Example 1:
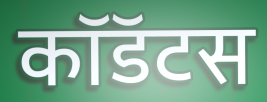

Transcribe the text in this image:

कॉडॅटस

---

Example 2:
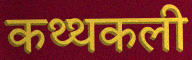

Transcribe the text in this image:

कथ्थकली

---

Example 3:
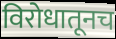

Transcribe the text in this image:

विरोधातूनच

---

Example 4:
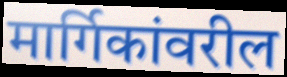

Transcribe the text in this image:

मार्गिकांवरील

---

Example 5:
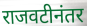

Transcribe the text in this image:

राजवटीनंतर